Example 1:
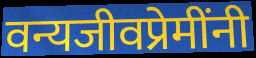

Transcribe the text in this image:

वन्यजीवप्रेमींनी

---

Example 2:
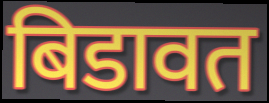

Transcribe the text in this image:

बिडावत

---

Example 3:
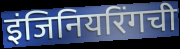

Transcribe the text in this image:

इंजिनियरिंगची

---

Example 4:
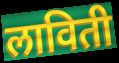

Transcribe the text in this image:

लाविती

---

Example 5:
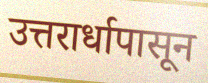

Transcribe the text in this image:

उत्तरार्धापासून